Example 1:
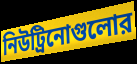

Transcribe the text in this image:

নিউট্রিনোগুলোর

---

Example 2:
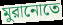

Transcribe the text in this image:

মুরানোতে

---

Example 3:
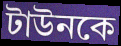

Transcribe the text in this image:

টাউনকে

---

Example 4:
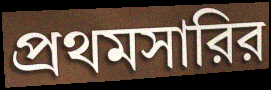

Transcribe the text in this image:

প্রথমসারির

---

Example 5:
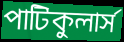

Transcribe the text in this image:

পাটিকুলার্স